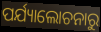
ପର୍ଯ୍ୟାଲୋଚନାରୁ